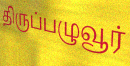
திருப்பழுவூர்